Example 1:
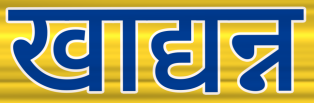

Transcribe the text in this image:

खाद्यन्न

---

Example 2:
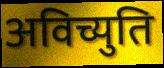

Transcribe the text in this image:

अविच्युति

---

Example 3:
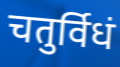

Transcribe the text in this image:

चतुर्विधं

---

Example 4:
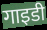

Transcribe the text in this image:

गाइडी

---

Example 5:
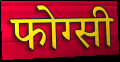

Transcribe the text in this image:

फोग्सी